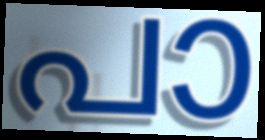
പാ